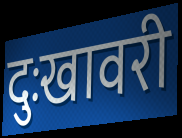
दुःखावरी